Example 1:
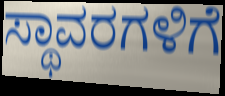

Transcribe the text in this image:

ಸ್ಥಾವರಗಳಿಗೆ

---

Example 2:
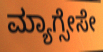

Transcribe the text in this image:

ಮ್ಯಾಗ್ಸೇಸೇ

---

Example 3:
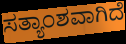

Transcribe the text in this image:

ಸತ್ಯಾಂಶವಾಗಿದೆ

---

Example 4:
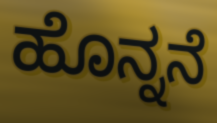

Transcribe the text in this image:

ಹೊನ್ನನೆ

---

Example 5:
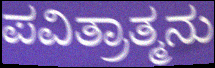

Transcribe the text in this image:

ಪವಿತ್ರಾತ್ಮನು